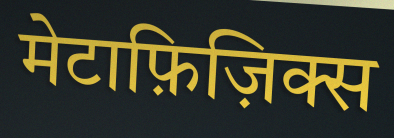
मेटाफ़िज़िक्स